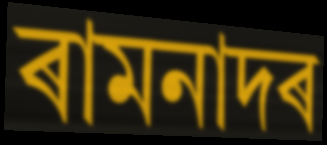
ৰামনাদৰ